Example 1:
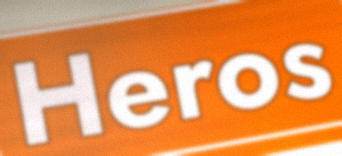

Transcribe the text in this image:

Heros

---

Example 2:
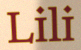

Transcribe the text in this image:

Lili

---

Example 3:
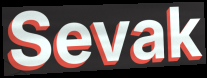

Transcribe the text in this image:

Sevak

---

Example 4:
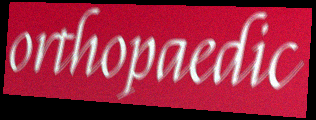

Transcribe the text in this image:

orthopaedic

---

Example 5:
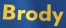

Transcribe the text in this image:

Brody